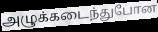
அழுக்கடைந்துபோன